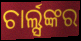
ଚାର୍ଲ୍ସଙ୍କର